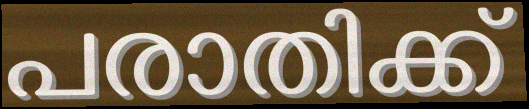
പരാതിക്ക്